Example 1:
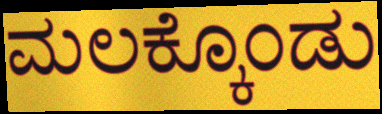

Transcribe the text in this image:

ಮಲಕ್ಕೊಂಡು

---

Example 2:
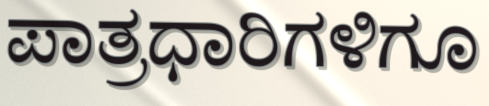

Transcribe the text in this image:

ಪಾತ್ರಧಾರಿಗಳಿಗೂ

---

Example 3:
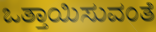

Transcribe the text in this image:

ಒತ್ತಾಯಿಸುವಂತೆ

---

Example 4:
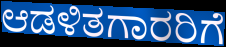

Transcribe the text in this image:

ಆಡಳಿತಗಾರರಿಗೆ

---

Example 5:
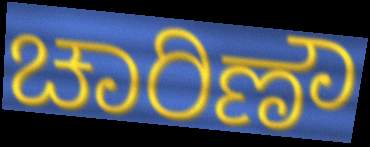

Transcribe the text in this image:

ಚಾರಿಣೌ